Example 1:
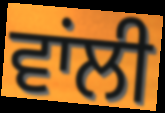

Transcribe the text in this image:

ਵਾਂਲੀ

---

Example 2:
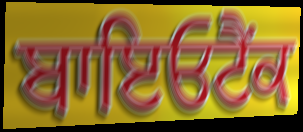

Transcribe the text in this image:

ਬਾਇਓਟੈਂਕ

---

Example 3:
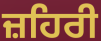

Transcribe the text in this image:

ਜ਼ਹਿਰੀ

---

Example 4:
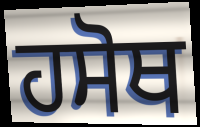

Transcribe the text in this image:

ਹਸੋਥ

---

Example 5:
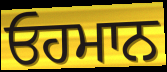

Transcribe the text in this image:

ਓਹਮਾਨ